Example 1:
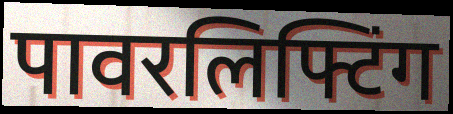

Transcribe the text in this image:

पावरलिफ्टिंग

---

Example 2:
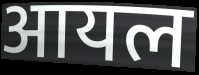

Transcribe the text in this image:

आयल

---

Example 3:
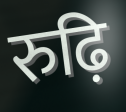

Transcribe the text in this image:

रुढ़ि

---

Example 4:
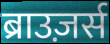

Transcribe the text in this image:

ब्राउज़र्स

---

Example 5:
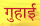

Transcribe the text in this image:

गुहाई